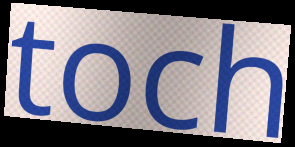
toch